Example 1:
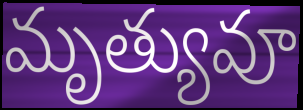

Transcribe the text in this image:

మృత్యువూ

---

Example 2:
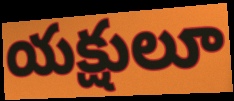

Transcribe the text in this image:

యక్షులూ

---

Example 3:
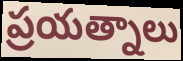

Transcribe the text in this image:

ప్రయత్నాలు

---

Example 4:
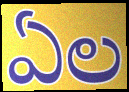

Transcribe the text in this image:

ఏల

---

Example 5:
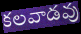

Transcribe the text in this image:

కలవాడవు